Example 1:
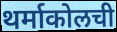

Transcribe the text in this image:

थर्माकोलची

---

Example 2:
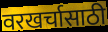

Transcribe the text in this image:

वरखर्चासाठी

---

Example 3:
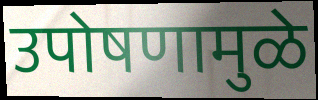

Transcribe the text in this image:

उपोषणामुळे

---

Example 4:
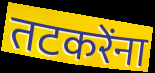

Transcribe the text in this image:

तटकरेंना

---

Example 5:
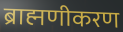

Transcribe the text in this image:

ब्राह्मणीकरण